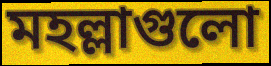
মহল্লাগুলো